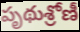
పృథుశ్రోణీ